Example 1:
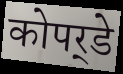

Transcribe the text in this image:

कोपर्डे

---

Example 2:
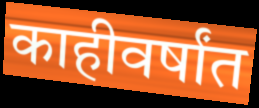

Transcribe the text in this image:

काहीवर्षांत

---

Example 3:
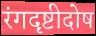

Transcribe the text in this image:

रंगदृष्टीदोष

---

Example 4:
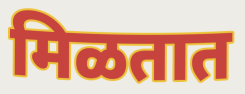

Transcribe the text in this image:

मिळतात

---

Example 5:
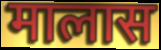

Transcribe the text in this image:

मालास